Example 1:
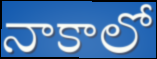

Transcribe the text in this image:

నాకాలో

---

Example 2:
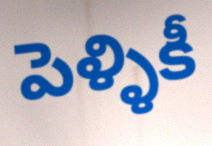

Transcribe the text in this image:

పెళ్ళికీ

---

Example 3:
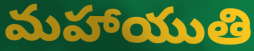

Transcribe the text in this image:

మహాయుతి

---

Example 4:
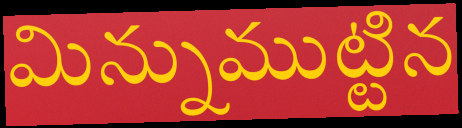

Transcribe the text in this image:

మిన్నుముట్టిన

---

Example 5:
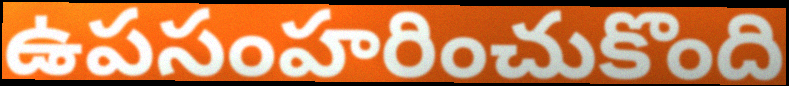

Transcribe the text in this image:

ఉపసంహరించుకొంది